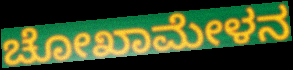
ಚೋಖಾಮೇಳನ